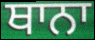
ਥਾਨਾ